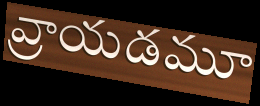
వ్రాయడమూ